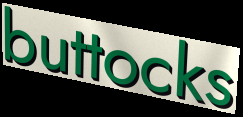
buttocks